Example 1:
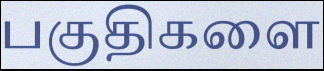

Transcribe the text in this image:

பகுதிகளை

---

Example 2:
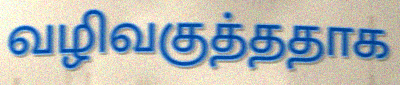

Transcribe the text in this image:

வழிவகுத்ததாக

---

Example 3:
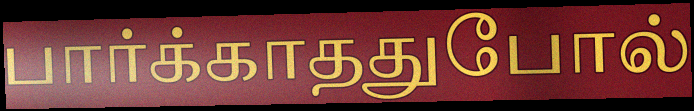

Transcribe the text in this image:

பார்க்காததுபோல்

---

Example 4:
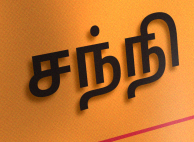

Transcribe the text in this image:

சந்நி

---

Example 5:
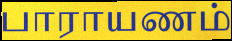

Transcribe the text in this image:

பாராயணம்